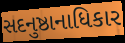
સદનુષ્ઠાનાધિકાર